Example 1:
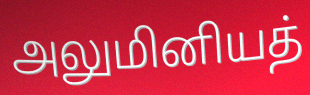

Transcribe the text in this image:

அலுமினியத்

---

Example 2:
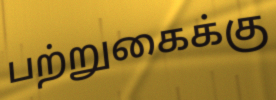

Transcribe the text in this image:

பற்றுகைக்கு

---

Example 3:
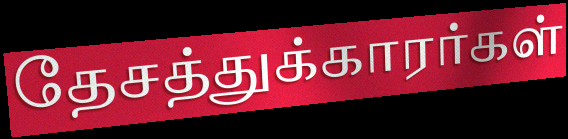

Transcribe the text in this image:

தேசத்துக்காரர்கள்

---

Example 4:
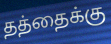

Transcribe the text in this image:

தத்தைக்கு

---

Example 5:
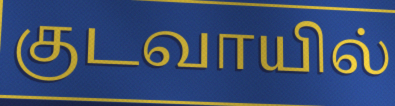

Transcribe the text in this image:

குடவாயில்